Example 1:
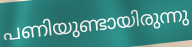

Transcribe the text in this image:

പണിയുണ്ടായിരുന്നു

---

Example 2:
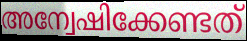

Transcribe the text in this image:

അന്വേഷിക്കേണ്ടത്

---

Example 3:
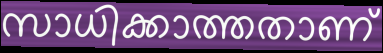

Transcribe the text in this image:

സാധിക്കാത്തതാണ്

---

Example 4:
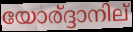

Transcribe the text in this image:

യോര്ദ്ദാനില്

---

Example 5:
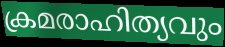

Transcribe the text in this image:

ക്രമരാഹിത്യവും